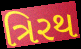
ત્રિરથ